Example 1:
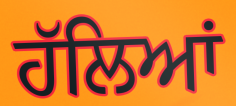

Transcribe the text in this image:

ਹੱਲਿਆਂ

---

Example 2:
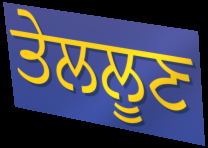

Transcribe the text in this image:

ਤੇਲਲੂਣ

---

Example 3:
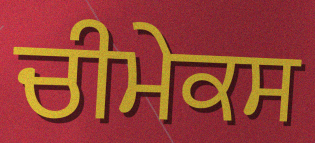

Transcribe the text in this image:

ਚੀਮੇਕਸ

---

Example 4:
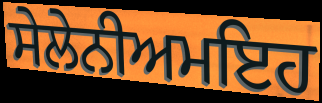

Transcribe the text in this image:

ਸੇਲੇਨੀਅਮਇਹ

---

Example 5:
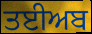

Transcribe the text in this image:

ਤਈਅਬ